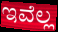
ಇವೆಲ್ಲ